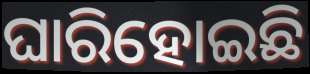
ଘାରିହୋଇଛି